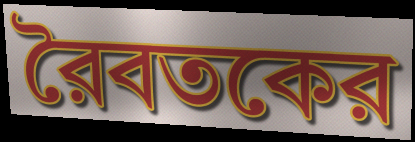
রৈবতকের